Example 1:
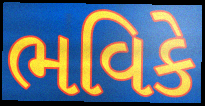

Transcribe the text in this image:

ભવિકે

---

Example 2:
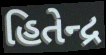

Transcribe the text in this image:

હિતેન્દ્ર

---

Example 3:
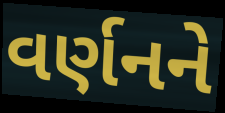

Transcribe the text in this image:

વર્ણનને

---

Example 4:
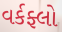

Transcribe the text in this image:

વર્કફ્લો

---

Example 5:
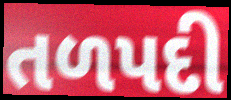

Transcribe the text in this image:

તળપદી